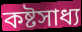
কষ্টসাধ্য